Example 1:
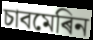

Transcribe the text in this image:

চাবমেৰিন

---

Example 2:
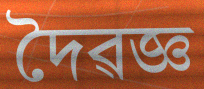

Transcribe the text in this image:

দৈৱজ্ঞ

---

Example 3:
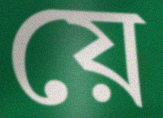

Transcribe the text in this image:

য়ে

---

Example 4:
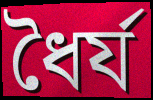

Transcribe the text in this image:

ধৈৰ্য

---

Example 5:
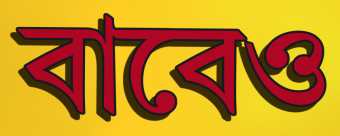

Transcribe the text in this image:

বাবেও